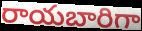
రాయబారిగా